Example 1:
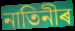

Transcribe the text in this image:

নাতিনীৰ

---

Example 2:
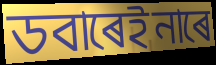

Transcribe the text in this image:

ডবাৰেইনাৰে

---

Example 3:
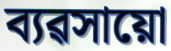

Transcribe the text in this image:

ব্যৱসায়ো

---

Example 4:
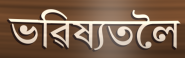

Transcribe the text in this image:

ভৱিষ্যতলৈ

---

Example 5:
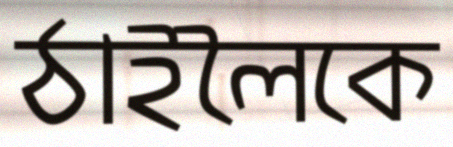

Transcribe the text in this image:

ঠাইলৈকে